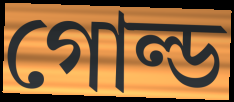
গোল্ড